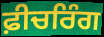
ਫ਼ੀਚਰਿੰਗ